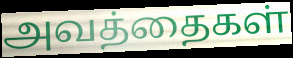
அவத்தைகள்